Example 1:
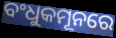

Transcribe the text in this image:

ବଂଧୁକମୂନରେ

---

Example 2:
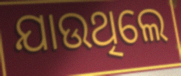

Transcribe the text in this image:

ଯାଉଥିଲେ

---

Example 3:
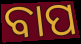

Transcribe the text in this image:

ବାପ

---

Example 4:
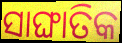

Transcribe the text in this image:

ସାଙ୍ଘାତିକ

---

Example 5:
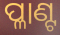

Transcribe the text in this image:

ପ୍ଳାଣ୍ଟ